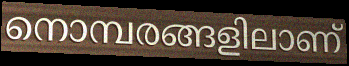
നൊമ്പരങ്ങളിലാണ്